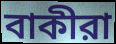
বাকীরা